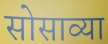
सोसाव्या